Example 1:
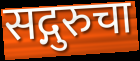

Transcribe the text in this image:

सद्गुरुचा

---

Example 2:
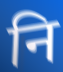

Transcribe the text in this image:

नि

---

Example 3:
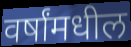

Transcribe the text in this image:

वर्षांमधील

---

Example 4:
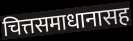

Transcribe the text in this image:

चित्तसमाधानासह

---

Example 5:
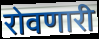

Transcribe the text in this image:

रोवणारी